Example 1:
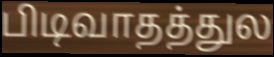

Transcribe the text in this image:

பிடிவாதத்துல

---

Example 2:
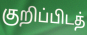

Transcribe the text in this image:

குறிப்பிடத்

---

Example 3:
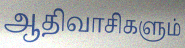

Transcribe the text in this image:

ஆதிவாசிகளும்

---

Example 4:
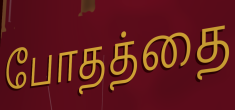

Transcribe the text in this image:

போதத்தை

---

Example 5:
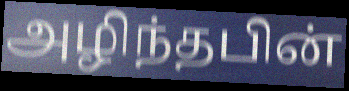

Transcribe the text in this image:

அழிந்தபின்